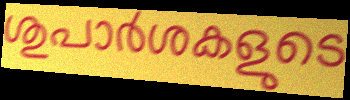
ശുപാർശകളുടെ